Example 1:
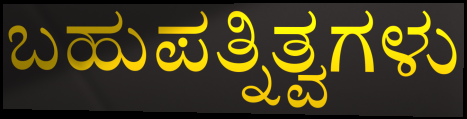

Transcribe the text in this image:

ಬಹುಪತ್ನಿತ್ವಗಳು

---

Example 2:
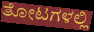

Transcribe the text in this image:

ತೋಟಗಳಲ್ಲಿ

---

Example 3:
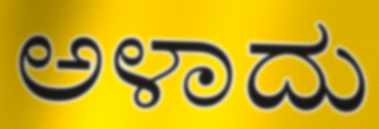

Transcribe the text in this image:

ಅಳಾದು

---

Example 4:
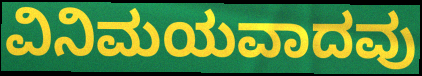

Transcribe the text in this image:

ವಿನಿಮಯವಾದವು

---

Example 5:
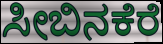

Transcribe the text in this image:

ಸೀಬಿನಕೆರೆ